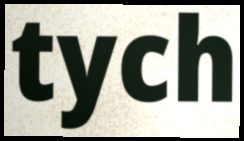
tych